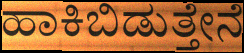
ಹಾಕಿಬಿಡುತ್ತೇನೆ